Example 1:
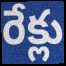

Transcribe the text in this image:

రేక్లు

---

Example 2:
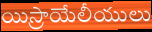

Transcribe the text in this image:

యిస్రాయేలీయులు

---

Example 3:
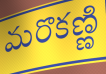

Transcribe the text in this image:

మరొకణ్ణి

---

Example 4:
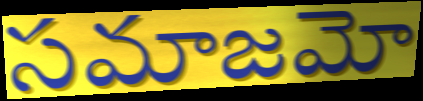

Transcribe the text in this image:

సమాజమో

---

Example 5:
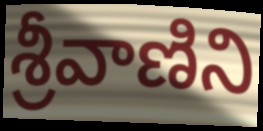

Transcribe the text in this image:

శ్రీవాణిని